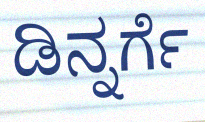
ಡಿನ್ನರ್ಗೆ